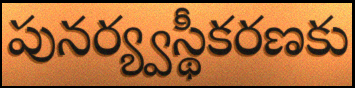
పునర్య్వస్థీకరణకు